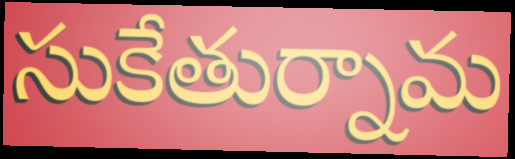
సుకేతుర్నామ